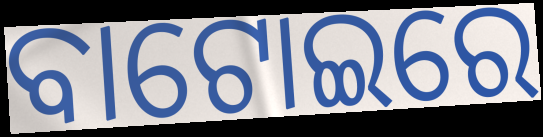
ବାଟୋଇରେ